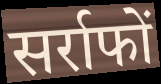
सर्राफों